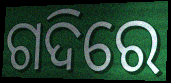
ଗଦିରେ